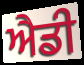
ਐਡੀ